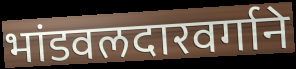
भांडवलदारवर्गाने